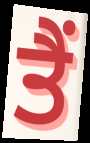
ਤੈਂ